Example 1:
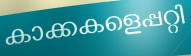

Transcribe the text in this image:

കാക്കകളെപ്പറ്റി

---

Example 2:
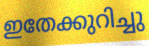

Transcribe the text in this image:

ഇതേക്കുറിച്ചു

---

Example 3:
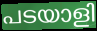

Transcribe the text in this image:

പടയാളി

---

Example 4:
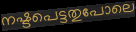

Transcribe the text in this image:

നഷ്ടപെട്ടതുപോലെ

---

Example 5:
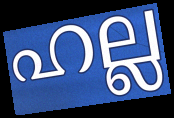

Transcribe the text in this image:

ഹല്ല